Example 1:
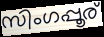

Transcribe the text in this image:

സിംഗപ്പൂര്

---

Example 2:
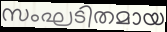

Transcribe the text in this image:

സംഘടിതമായ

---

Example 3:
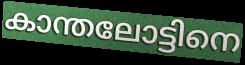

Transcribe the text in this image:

കാന്തലോട്ടിനെ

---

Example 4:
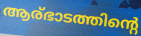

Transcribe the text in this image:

ആര്ഭാടത്തിന്റെ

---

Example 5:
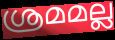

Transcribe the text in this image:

ശ്രമമല്ല